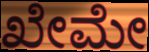
ಖೇಮೇ